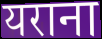
यराना